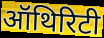
ऑथिरिटी